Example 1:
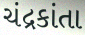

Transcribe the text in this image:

ચંદ્રકાંતા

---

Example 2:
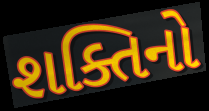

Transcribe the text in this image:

શક્તિનો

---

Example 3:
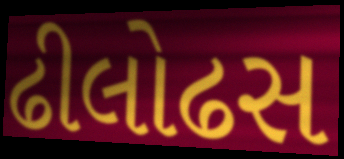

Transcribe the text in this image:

ઢીલોઢસ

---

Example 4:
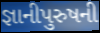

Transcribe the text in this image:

જ્ઞાનીપુરુષની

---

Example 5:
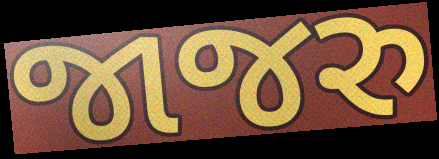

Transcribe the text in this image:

જાજરુ